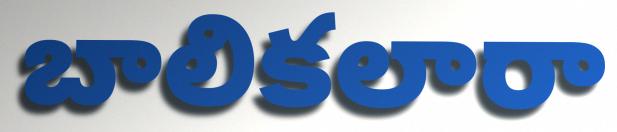
బాలికలారా